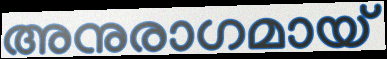
അനുരാഗമായ്